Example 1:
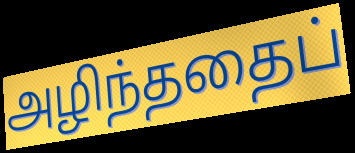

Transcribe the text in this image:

அழிந்ததைப்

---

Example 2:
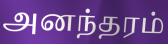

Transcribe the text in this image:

அனந்தரம்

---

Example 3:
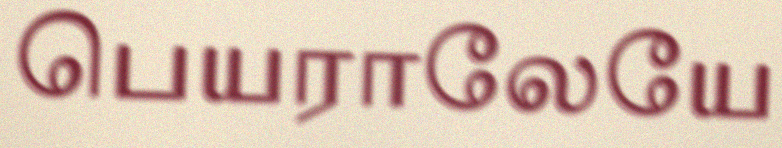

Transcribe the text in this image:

பெயராலேயே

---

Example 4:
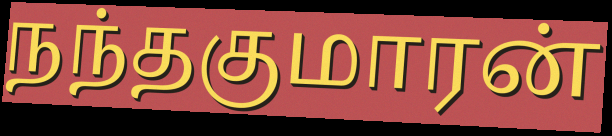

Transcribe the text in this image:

நந்தகுமாரன்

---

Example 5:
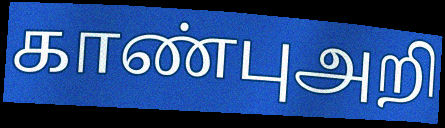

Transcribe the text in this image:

காண்புஅறி